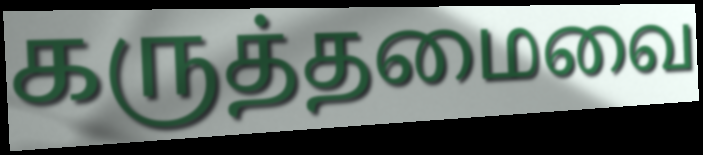
கருத்தமைவை